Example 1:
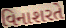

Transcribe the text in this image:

વિનાશરતે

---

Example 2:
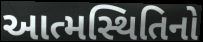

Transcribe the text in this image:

આત્મસ્થિતિનો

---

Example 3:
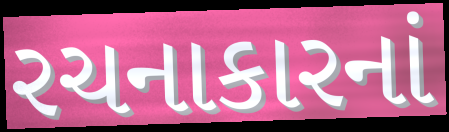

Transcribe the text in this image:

રચનાકારનાં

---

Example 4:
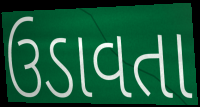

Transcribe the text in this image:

ઉડાવતા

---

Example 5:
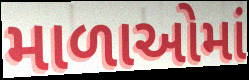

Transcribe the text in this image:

માળાઓમાં